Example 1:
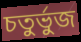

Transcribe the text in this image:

চতুৰ্ভুজ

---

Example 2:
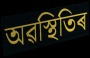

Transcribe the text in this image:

অৱস্থিতিৰ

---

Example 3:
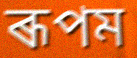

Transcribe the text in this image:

ৰূপম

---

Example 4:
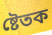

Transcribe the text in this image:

ষ্টেতক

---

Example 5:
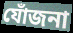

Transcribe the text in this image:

যোঁজনা